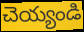
చెయ్యండి